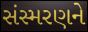
સંસ્મરણને